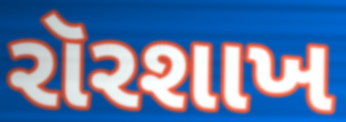
રૉરશાખ